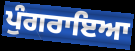
ਪੁੰਗਰਾਇਆ